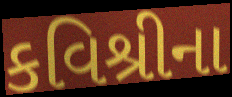
કવિશ્રીના